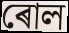
ৰোল